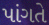
પાંગતે